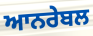
ਆਨਰੇਬਲ